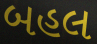
બહલ